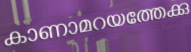
കാണാമറയത്തേക്കു